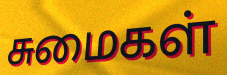
சுமைகள்